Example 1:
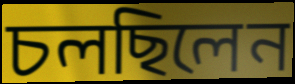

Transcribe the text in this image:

চলছিলেন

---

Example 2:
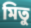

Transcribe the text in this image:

মিতু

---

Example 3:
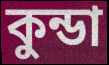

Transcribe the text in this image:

কুন্ডা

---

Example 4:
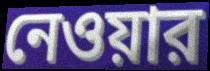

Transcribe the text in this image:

নেওয়ার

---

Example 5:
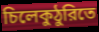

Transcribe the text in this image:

চিলেকুঠুরিতে